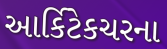
આર્કિટેકચરના